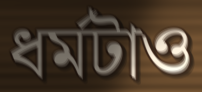
ধর্মটাও